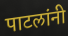
पाटलांनी